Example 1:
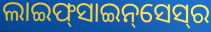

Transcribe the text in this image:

ଲାଇଫ୍‌ସାଇନ୍‌ସେସ୍‌ର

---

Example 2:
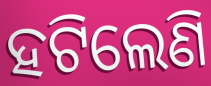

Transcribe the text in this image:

ହଟିଲେଣି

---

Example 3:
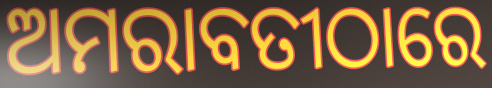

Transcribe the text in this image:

ଅମରାବତୀଠାରେ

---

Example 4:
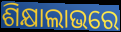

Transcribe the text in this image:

ଶିକ୍ଷାଲାଭରେ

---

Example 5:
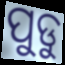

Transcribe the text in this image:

ପୁଡୁ